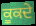
ਕੂਕਦੇ